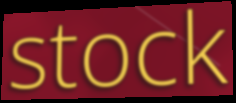
stock